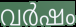
വർഷം